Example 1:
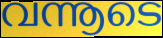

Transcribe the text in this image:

വന്നൂടെ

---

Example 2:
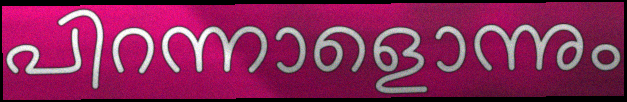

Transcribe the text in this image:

പിറന്നാളൊന്നും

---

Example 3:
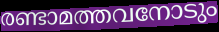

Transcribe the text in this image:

രണ്ടാമത്തവനോടും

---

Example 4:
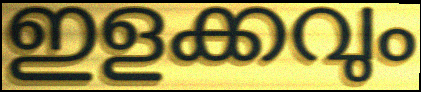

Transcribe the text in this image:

ഇളക്കവും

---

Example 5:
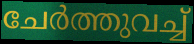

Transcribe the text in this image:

ചേർത്തുവച്ച്